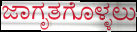
ಜಾಗೃತಗೊಳ್ಳಲು